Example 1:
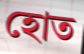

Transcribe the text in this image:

হোত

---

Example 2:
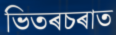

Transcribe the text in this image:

ভিতৰচৰাত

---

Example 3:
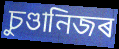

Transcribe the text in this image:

চুণ্ডানিজৰ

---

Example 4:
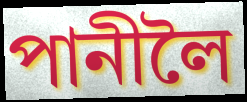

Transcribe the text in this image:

পানীলৈ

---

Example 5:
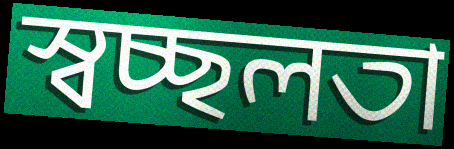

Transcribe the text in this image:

স্বচ্ছলতা